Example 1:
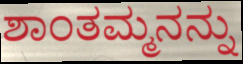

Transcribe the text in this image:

ಶಾಂತಮ್ಮನನ್ನು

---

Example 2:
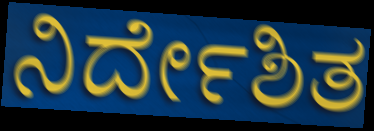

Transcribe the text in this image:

ನಿರ್ದೇಶಿತ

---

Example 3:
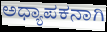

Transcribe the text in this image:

ಅಧ್ಯಾಪಕನಾಗಿ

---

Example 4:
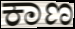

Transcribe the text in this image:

ಕಾಣ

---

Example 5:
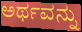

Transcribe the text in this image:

ಅರ್ಥವನ್ನು